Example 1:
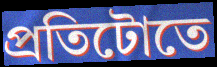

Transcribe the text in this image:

প্ৰতিটোতে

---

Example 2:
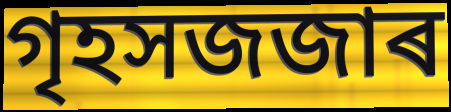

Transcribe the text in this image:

গৃহসজজাৰ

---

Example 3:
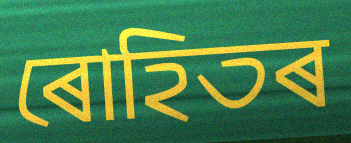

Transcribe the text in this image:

ৰোহিতৰ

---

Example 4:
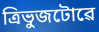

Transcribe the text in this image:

ত্ৰিভুজটোৱে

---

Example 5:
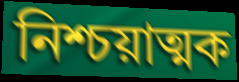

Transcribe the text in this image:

নিশ্চয়াত্মক